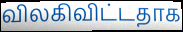
விலகிவிட்டதாக